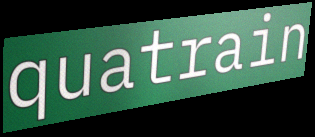
quatrain